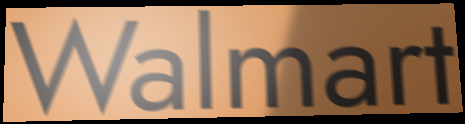
Walmart